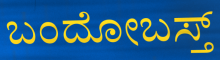
ಬಂದೋಬಸ್ತ್